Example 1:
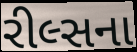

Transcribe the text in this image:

રીલ્સના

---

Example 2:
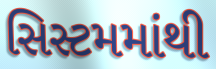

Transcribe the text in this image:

સિસ્ટમમાંથી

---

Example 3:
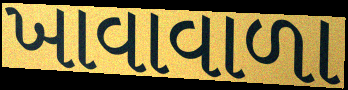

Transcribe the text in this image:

ખાવાવાળા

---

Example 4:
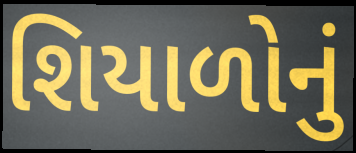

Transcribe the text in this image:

શિયાળોનું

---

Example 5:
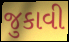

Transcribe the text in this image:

જુકાવી